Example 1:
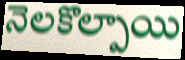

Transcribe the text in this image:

నెలకొల్పాయి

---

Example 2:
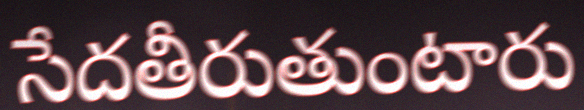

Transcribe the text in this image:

సేదతీరుతుంటారు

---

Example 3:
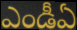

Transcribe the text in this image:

ఎండీఏ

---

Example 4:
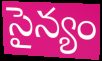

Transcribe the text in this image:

సైన్యం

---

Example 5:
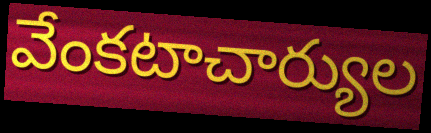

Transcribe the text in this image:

వేంకటాచార్యుల